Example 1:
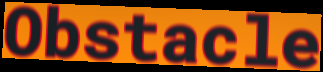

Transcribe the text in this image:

Obstacle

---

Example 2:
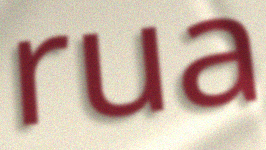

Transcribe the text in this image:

rua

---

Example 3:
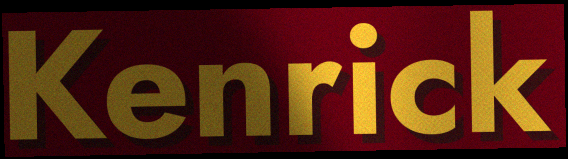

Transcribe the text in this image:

Kenrick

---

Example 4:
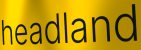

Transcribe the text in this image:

headland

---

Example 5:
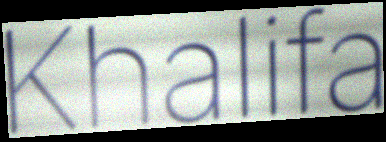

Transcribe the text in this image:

Khalifa